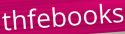
thfebooks